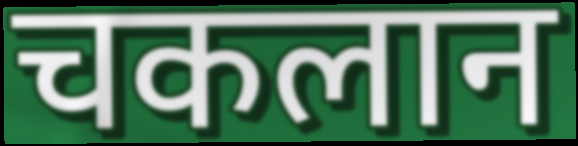
चकलान